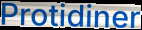
Protidiner